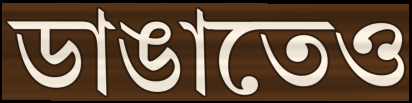
ডাঙাতেও